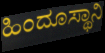
ಹಿಂದೂಸ್ಥಾನಿ